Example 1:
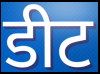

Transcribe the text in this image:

डीट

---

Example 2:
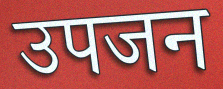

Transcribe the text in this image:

उपजन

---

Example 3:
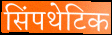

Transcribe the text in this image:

सिंपथेटिक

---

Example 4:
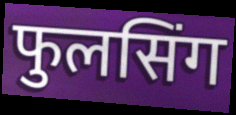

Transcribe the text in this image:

फुलसिंग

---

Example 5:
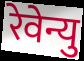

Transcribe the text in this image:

रेवेन्यु